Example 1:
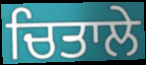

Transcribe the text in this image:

ਚਿਤਾਲੇ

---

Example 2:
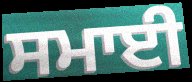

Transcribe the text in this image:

ਸਮਾਈ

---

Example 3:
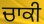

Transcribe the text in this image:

ਚਾਕੀ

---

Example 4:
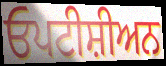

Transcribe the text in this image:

ਓਪਟੀਸ਼ੀਅਨ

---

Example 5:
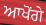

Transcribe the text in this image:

ਆਖੋਂਗੇ